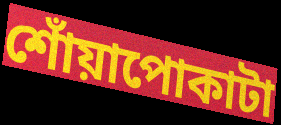
শোঁয়াপোকাটা